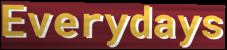
Everydays